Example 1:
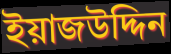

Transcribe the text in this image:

ইয়াজউদ্দিন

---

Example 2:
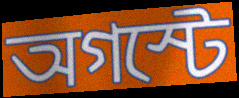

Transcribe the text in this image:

অগস্টে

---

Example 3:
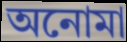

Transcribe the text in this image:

অনোমা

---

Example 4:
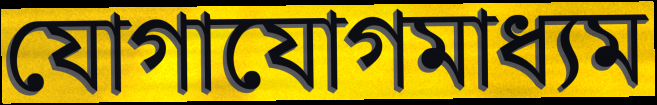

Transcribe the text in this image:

যোগাযোগমাধ্যম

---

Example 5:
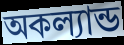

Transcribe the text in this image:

অকল্যান্ড